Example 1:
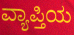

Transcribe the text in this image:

ವ್ಯಾಪ್ತಿಯ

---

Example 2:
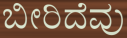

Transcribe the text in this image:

ಬೀರಿದೆವು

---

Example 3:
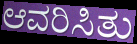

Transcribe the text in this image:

ಆವರಿಸಿತು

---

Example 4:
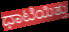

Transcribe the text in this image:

ಧಾಟಿಯಿತ್ತು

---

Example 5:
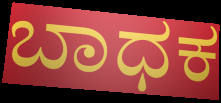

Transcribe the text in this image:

ಬಾಧಕ